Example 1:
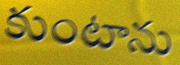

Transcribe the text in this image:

కుంటాను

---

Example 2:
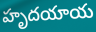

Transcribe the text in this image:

హృదయాయ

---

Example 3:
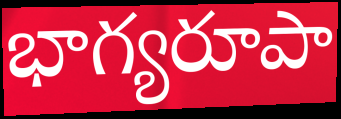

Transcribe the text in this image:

భాగ్యరూపా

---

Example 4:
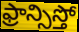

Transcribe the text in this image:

ఫ్రాన్సిస్తో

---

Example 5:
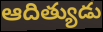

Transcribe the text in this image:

ఆదిత్యుడు